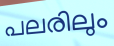
പലരിലും